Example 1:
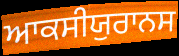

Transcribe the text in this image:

ਆਕਸੀਯੁਰਾਨਸ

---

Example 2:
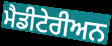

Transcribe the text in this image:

ਮੈਡੀਟੇਰੀਅਨ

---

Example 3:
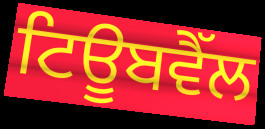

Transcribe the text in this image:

ਟਿਊਬਵੈੱਲ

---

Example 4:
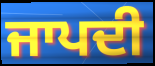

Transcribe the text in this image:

ਜਾਪਦੀ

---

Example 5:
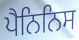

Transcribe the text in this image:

ਪੈਨਿਨਿਸ